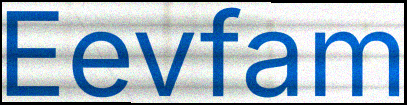
Eevfam